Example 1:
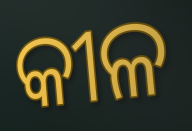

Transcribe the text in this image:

କୀଳ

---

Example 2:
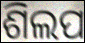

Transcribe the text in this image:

ଶିଲପ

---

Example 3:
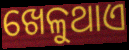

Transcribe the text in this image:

ଖେଳୁଥାଏ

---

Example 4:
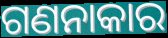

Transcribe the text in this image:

ଗଣନାକାର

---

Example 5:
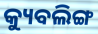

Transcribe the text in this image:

କ୍ୟୁବଲିଙ୍ଗ